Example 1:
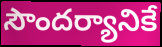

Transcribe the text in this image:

సౌందర్యానికే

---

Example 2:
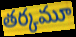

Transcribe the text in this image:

తర్కమూ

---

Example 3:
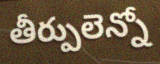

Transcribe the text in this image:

తీర్పులెన్నో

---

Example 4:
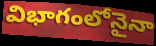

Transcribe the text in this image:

విభాగంలోనైనా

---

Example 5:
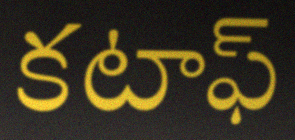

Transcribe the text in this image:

కటాఫ్